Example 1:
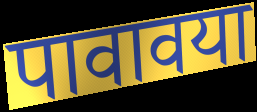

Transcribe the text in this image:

पावावया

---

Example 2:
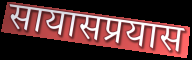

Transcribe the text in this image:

सायासप्रयास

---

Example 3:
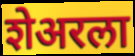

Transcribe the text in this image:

शेअरला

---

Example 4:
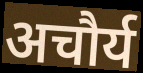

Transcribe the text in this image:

अचौर्य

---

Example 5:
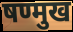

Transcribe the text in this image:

षण्मुख